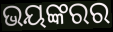
ଭୟଙ୍କରର